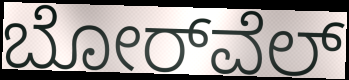
ಬೋರ್‌ವೆಲ್